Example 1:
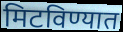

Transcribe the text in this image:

मिटविण्यात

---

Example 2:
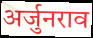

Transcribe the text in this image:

अर्जुनराव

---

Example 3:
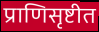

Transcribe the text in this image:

प्राणिसृष्टीत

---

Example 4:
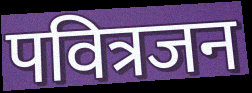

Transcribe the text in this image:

पवित्रजन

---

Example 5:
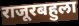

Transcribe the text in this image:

राजूरबहुला